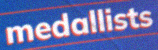
medallists